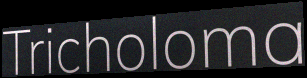
Tricholoma